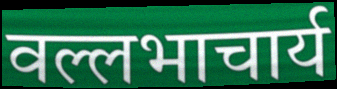
वल्लभाचार्य